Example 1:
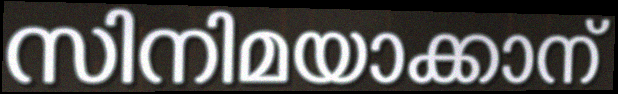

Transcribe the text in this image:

സിനിമയാക്കാന്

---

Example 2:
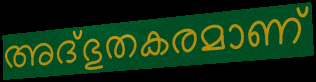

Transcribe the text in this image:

അദ്ഭുതകരമാണ്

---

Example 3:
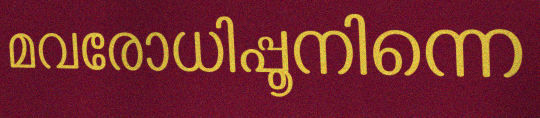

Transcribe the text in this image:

മവരോധിപ്പൂനിന്നെ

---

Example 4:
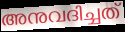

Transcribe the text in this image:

അനുവദിച്ചത്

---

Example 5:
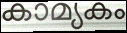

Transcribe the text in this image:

കാമ്യകം